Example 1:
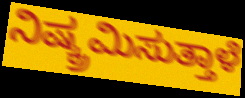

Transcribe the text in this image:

ನಿಷ್ಕ್ರಮಿಸುತ್ತಾಳೆ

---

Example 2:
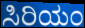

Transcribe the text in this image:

ಸಿರಿಯಂ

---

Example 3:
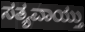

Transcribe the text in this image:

ಸತ್ಯವಾಯ್ತು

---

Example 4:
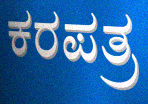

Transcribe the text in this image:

ಕರಪತ್ರ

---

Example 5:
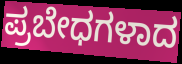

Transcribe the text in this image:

ಪ್ರಬೇಧಗಳಾದ